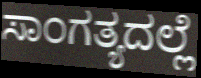
ಸಾಂಗತ್ಯದಲ್ಲೆ